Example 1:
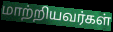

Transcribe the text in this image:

மாற்றியவர்கள்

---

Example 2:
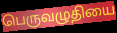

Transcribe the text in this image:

பெருவழுதியை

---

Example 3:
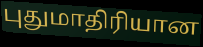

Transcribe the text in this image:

புதுமாதிரியான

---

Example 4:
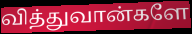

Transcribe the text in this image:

வித்துவான்களே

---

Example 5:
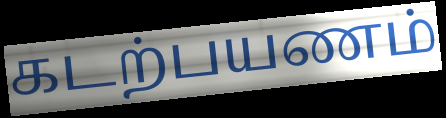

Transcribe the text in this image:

கடற்பயணம்